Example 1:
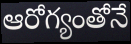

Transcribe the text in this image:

ఆరోగ్యంతోనే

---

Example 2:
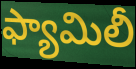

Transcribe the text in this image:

ఫ్యామిలీ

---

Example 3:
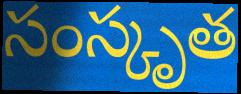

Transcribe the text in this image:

సంస్కృత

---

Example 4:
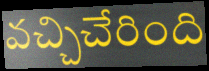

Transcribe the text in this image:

వచ్చిచేరింది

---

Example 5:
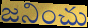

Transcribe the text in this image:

జనించు